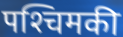
पश्चिमकी